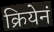
क्रियेनं